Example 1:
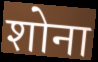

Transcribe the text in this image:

शोना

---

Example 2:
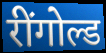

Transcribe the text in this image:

रींगोल्ड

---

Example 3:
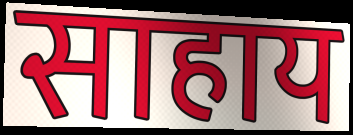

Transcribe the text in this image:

साहाय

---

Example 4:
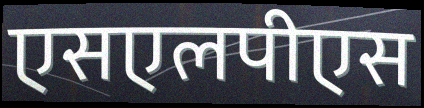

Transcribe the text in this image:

एसएलपीएस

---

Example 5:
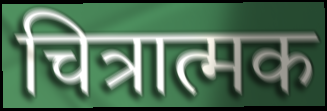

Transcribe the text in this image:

चित्रात्मक